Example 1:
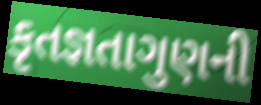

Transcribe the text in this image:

કૃતજ્ઞતાગુણની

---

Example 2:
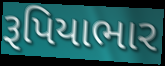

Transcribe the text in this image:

રૂપિયાભાર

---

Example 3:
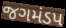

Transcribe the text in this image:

જગમંડપ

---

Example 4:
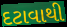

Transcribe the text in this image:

દટાવાથી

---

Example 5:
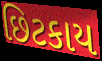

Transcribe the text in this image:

છિટકાય